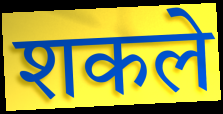
शकले